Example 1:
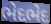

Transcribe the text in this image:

ભેદભેદ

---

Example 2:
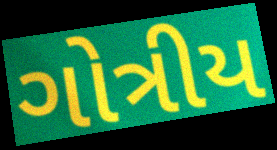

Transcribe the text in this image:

ગોત્રીય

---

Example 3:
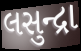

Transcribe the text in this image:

લસુન્દ્રા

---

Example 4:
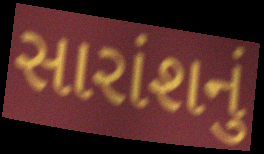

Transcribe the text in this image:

સારાંશનું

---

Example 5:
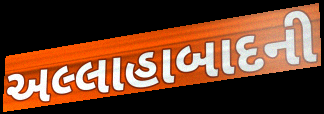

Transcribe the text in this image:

અલ્લાહાબાદની